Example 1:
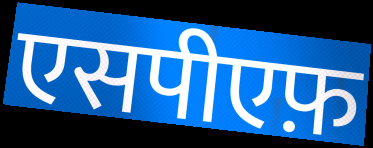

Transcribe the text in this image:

एसपीएफ़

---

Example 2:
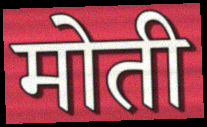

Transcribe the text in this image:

मोती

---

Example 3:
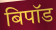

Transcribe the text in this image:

बिपॉड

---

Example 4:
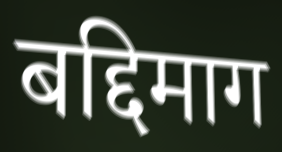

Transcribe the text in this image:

बद्दिमाग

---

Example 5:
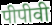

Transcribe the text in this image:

पीपीवी